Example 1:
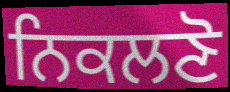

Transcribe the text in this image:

ਨਿਕਲਣੋ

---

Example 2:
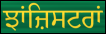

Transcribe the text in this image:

ਝਾਂਜ਼ਿਸਟਰਾਂ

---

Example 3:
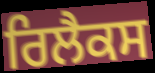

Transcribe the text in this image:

ਰਿਲੈਕਸ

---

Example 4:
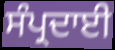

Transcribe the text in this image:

ਸੰਪ੍ਰਦਾਈ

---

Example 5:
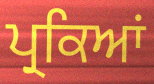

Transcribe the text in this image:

ਪ੍ਰਕਿਆਂ